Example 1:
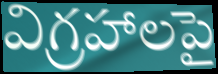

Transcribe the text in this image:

విగ్రహాలపై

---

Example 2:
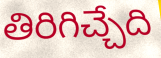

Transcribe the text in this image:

తిరిగిచ్చేది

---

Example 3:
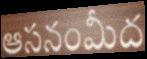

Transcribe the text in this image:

ఆసనంమీద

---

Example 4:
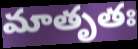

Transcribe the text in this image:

మాతృతః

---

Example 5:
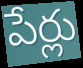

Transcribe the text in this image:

పేర్లు